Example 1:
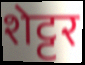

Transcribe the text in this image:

शेट्टर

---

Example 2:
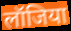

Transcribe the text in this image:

लॉजिया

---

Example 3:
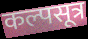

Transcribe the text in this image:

कल्पसूत्र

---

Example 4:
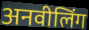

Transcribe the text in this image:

अनवीलिंग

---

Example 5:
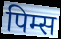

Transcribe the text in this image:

पिम्स